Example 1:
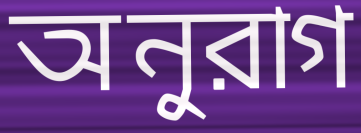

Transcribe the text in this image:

অনুরাগ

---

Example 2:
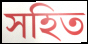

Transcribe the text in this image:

সহিত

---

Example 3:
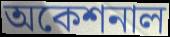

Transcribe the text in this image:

অকেশনাল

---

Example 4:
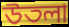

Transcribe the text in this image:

উতলা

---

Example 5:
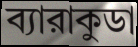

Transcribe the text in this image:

ব্যারাকুডা